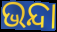
ଭନ୍ଦା